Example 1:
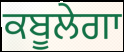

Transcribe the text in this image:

ਕਬੂਲੇਗਾ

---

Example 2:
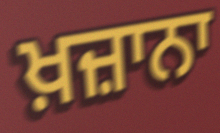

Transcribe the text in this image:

ਖ਼ਜ਼ਾਨਾ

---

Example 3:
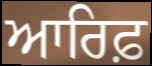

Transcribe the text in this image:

ਆਰਿਫ਼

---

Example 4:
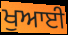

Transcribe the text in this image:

ਖੁਆਈ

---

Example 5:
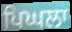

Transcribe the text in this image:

ਪਿਘਲਾ